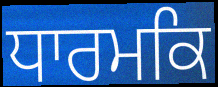
ਧਾਰਮਕਿ